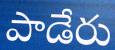
పాడేరు